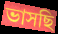
ভাসছি